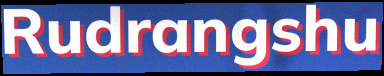
Rudrangshu